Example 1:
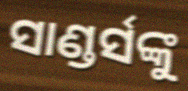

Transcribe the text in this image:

ସାଣ୍ଡର୍ସଙ୍କୁ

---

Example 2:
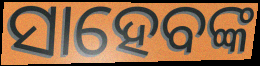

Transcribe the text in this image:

ସାହେବଙ୍କ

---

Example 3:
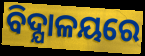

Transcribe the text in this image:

ବିଦ୍ଯାଳୟରେ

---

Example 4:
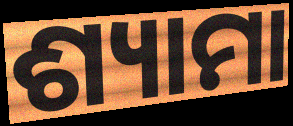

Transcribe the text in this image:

ଶ୍ୟାମା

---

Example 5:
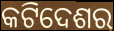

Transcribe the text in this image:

କଟିଦେଶର